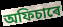
অফিচাৰে